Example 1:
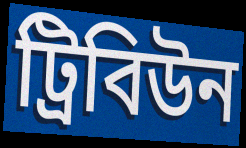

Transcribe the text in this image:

ট্রিবিউন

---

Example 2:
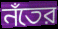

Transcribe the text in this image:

নঁতের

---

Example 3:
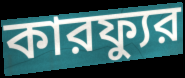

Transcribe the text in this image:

কারফ্যুর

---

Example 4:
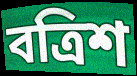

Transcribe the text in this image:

বত্রিশ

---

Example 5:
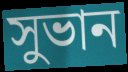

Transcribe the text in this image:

সুভান